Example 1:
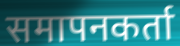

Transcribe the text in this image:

समापनकर्ता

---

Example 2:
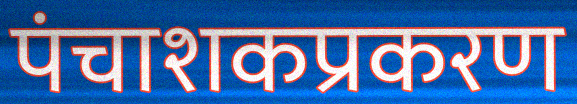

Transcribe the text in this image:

पंचाशकप्रकरण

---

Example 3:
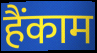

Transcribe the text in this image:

हैंकाम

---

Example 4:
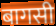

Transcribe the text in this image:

बागसी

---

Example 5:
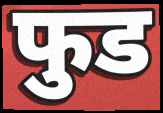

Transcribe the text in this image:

फुड